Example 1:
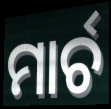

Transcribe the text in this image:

ମାର୍ଚ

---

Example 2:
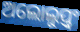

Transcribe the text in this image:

ଅଲୋଲୁପ୍ତ୍ୱଂ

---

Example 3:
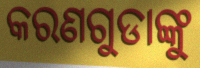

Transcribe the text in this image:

କରଣଗୁଡାଙ୍କୁ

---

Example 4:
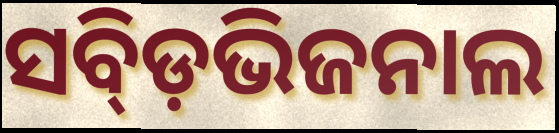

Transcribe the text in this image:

ସବ୍ଡ଼ିଭିଜନାଲ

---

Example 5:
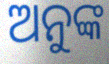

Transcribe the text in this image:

ଅନୁଙ୍କ